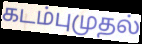
கடம்புமுதல்